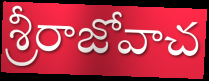
శ్రీరాజోవాచ